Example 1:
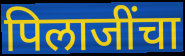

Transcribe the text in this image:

पिलाजींचा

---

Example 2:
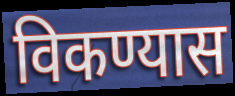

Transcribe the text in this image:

विकण्यास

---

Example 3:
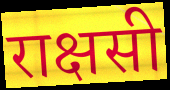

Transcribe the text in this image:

राक्षसी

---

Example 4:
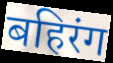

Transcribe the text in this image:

बहिरंग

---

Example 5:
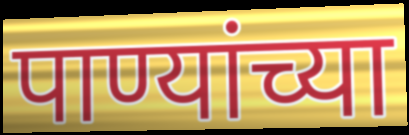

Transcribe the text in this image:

पाण्यांच्या